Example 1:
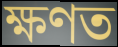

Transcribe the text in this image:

ক্ষণত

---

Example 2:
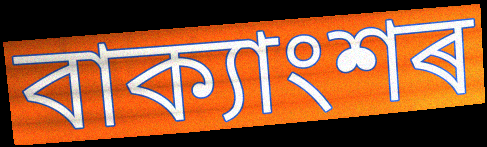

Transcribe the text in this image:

বাক্যাংশৰ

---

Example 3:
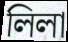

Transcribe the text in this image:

লিলা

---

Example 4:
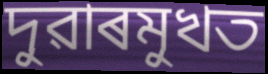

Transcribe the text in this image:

দুৱাৰমুখত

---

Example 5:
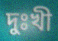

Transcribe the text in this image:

দুঃখী